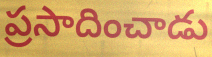
ప్రసాదించాడు